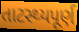
તાટસ્થ્યપૂર્ણ